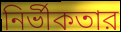
নির্ভীকতার